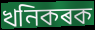
খনিকৰক